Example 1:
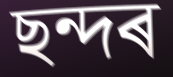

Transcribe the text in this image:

ছন্দৰ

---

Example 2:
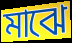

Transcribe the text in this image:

মাঝে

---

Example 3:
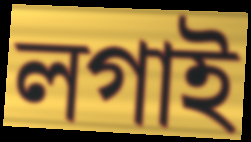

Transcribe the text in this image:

লগাই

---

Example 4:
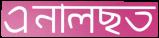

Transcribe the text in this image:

এনালছত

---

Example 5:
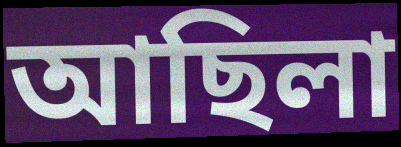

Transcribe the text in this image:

আছিলা